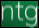
ntg